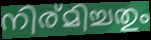
നിര്മിച്ചതും